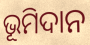
ଭୂମିଦାନ